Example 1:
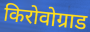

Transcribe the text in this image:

किरोवोग्राड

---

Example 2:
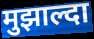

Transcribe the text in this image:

मुझाल्दा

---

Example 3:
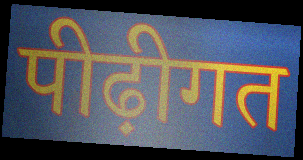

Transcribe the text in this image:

पीढ़ीगत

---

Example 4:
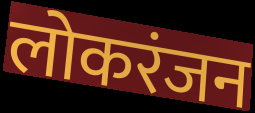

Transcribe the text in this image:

लोकरंजन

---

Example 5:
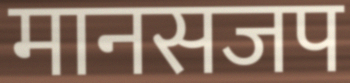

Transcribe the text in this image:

मानसजप